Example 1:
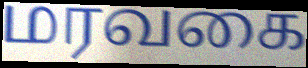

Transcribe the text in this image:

மரவகை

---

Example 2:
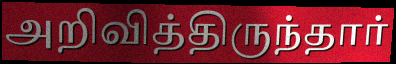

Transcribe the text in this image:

அறிவித்திருந்தார்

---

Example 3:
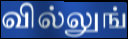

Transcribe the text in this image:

வில்லுங்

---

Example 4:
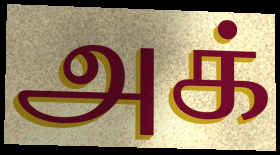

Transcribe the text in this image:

அக்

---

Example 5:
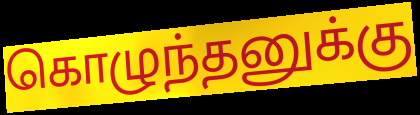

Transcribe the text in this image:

கொழுந்தனுக்கு